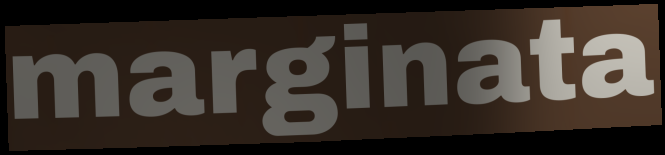
marginata